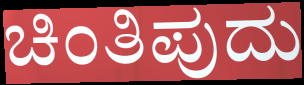
ಚಿಂತಿಪುದು